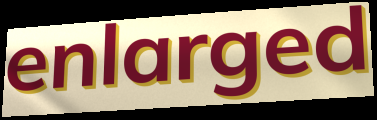
enlarged